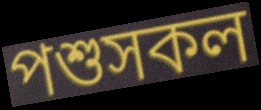
পশুসকল